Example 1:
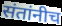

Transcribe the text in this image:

संतांनीच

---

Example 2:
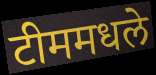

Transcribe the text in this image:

टीममधले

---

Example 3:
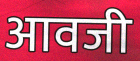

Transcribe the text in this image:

आवजी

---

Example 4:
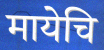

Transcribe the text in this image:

मायेचि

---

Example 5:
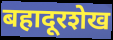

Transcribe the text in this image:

बहादूरशेख